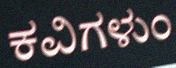
ಕವಿಗಳುಂ